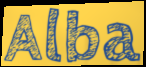
Alba